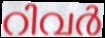
റിവർ